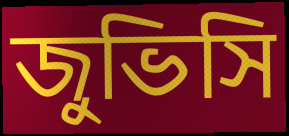
জুভিসি